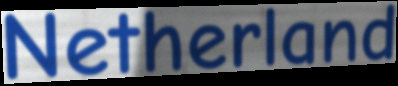
Netherland